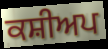
ਕਸ਼ੀਅਪ